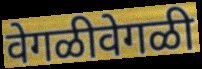
वेगळीवेगळी